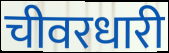
चीवरधारी